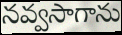
నవ్వసాగాను